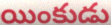
యింకుడు